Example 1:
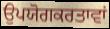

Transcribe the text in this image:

ਉਪਯੋਗਕਰਤਾਵਾਂ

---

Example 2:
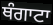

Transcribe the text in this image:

ਥੰਗਾਟਾ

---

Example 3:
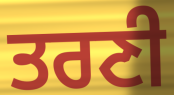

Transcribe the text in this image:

ਤਰਣੀ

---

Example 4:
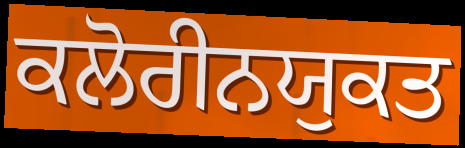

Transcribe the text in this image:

ਕਲੋਰੀਨਯੁਕਤ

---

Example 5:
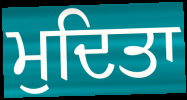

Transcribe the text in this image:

ਮੁਦਿਤਾ